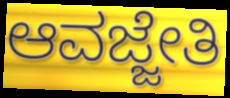
ಆವಜ್ಜೇತಿ